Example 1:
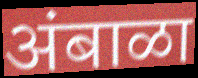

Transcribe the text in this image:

अंबाळा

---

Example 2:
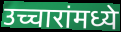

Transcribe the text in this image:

उच्चारांमध्ये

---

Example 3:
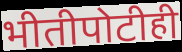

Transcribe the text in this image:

भीतीपोटीही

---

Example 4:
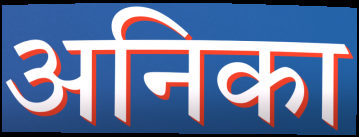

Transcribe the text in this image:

अनिका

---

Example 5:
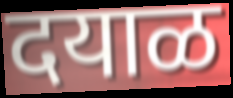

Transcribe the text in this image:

दयाळ